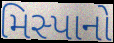
મિસ્પાનો